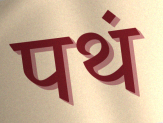
पथं